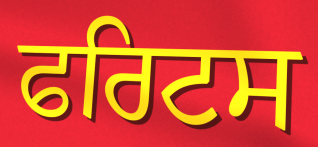
ਫਰਿਟਸ